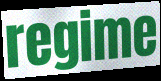
regime